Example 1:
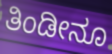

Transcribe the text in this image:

ತಿಂಡೀನೂ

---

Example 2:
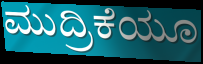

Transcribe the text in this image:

ಮುದ್ರಿಕೆಯೂ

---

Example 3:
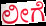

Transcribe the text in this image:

ಲೀಗೆ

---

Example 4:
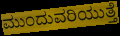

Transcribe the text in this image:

ಮುಂದುವರಿಯುತ್ತೆ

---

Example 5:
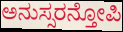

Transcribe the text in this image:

ಅನುಸ್ಸರನ್ತೋಪಿ